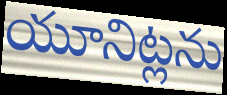
యూనిట్లను